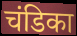
चंडिका